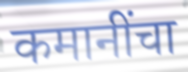
कमानींचा